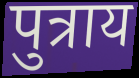
पुत्राय